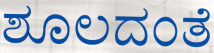
ಶೂಲದಂತೆ